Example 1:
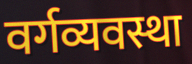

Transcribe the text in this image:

वर्गव्यवस्था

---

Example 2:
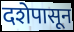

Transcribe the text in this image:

दशेपासून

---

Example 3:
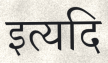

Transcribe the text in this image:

इत्यदि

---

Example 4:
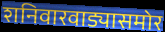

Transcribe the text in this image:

शनिवारवाड्यासमोर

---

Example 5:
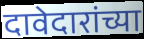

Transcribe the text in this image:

दावेदारांच्या